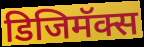
डिजिमॅक्स